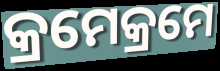
କ୍ରମେକ୍ରମେ